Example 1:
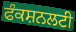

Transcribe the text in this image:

ਫੰਕਸ਼ਨਲਟੀ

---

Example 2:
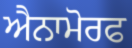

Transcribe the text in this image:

ਐਨਾਮੋਰਫ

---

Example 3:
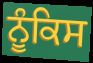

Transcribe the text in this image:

ਨੂੰਕਿਸ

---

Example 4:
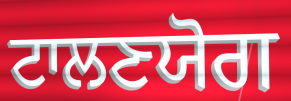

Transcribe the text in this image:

ਟਾਲਣਯੋਗ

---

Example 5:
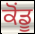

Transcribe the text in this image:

ਕੋਂਡੂ